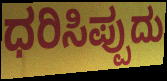
ಧರಿಸಿಪ್ಪುದು